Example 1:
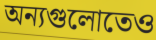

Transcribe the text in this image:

অন্যগুলোতেও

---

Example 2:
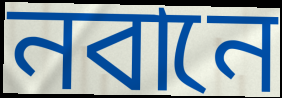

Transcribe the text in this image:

নবানে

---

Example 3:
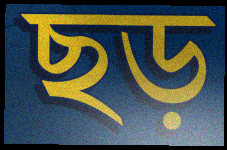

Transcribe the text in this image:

ছড়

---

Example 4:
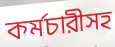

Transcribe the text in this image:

কর্মচারীসহ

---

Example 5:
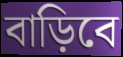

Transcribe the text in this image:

বাড়িবে